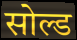
सोल्ड